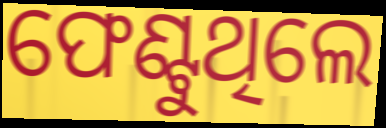
ଫେଣ୍ଟୁଥିଲେ